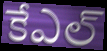
కేఎల్